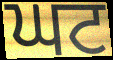
ਘਟ